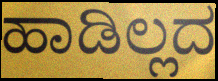
ಹಾಡಿಲ್ಲದ